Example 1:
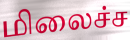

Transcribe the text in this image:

மிலைச்ச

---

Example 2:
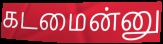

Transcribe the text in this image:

கடமைன்னு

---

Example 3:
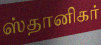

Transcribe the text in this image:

ஸ்தானிகர்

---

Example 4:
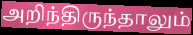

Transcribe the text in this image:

அறிந்திருந்தாலும்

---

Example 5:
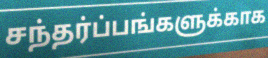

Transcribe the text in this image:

சந்தர்ப்பங்களுக்காக